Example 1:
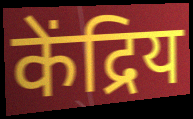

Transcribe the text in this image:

केंद्रिय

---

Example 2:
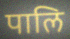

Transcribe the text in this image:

पालि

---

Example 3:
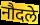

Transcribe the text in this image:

नौदले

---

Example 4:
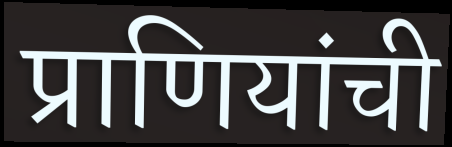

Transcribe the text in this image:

प्राणियांची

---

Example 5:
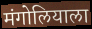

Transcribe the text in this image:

मंगोलियाला